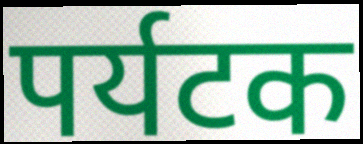
पर्यटक